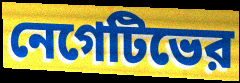
নেগেটিভের